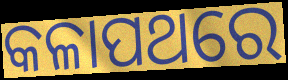
କଳାପଥରେ